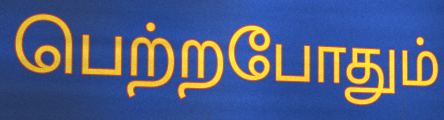
பெற்றபோதும்